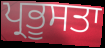
ਪ੍ਰਭੂਸਤਾ